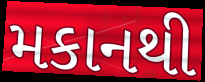
મકાનથી